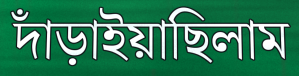
দাঁড়াইয়াছিলাম